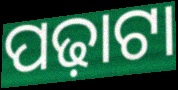
ପଢ଼ାଟା